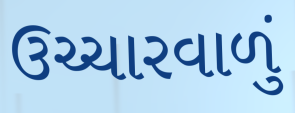
ઉચ્ચારવાળું